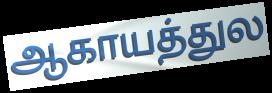
ஆகாயத்துல